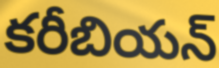
కరీబియన్